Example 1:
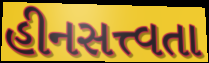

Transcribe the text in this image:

હીનસત્ત્વતા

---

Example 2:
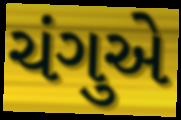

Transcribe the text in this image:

ચંગુએ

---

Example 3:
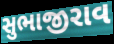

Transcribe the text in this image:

સુભાજીરાવ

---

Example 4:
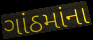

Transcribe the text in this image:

ગાંઠમાંના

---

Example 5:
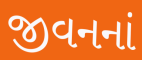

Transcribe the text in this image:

જીવનનાં